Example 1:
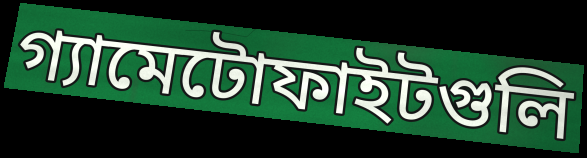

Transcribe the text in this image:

গ্যামেটোফাইটগুলি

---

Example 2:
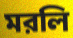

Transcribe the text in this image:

মরলি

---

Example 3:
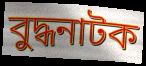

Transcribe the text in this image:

বুদ্ধনাটক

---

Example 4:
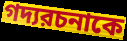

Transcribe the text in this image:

গদ্যরচনাকে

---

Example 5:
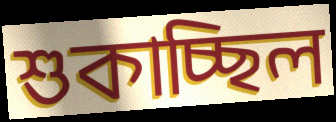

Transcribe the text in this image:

শুকাচ্ছিল